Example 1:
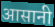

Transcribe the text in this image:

आसानी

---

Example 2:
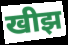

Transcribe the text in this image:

खीझ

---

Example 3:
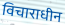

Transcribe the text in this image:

विचाराधीन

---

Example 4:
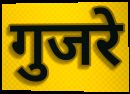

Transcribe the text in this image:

गुजरे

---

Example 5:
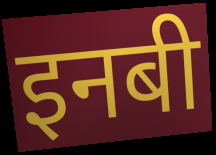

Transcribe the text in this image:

इनबी